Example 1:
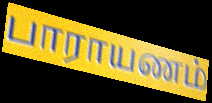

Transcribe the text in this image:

பாராயணம்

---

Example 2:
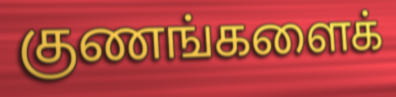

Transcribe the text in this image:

குணங்களைக்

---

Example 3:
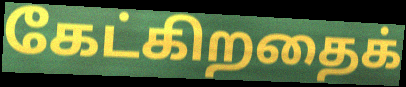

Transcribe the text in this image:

கேட்கிறதைக்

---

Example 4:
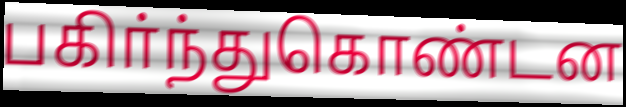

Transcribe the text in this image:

பகிர்ந்துகொண்டன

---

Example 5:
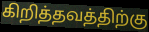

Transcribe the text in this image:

கிறித்தவத்திற்கு